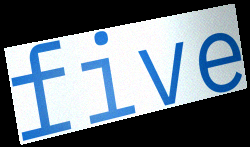
five